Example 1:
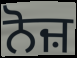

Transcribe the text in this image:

ਨੋਜ਼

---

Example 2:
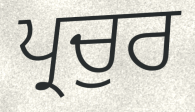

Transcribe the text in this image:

ਪ੍ਰਚੁਰ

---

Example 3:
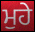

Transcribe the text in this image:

ਮੁਹੇ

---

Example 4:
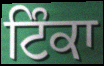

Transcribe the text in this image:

ਟਿੰਕਾ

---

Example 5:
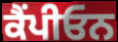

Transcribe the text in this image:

ਕੈਂਪੀਓਨ